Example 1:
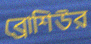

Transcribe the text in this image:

ব্রোশিউর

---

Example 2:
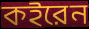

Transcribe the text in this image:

কইরেন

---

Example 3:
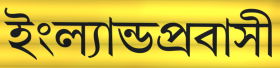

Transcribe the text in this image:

ইংল্যান্ডপ্রবাসী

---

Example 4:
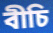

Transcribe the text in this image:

বীচি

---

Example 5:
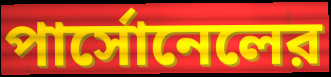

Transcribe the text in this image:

পার্সোনেলের